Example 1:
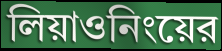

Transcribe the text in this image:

লিয়াওনিংয়ের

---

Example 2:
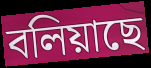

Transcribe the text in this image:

বলিয়াছে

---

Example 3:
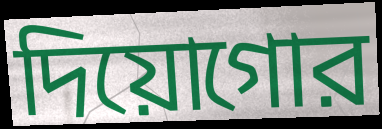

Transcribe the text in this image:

দিয়োগোর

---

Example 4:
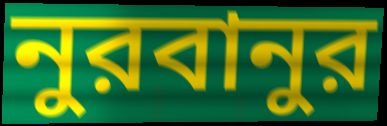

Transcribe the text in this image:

নুরবানুর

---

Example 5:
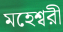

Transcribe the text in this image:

মহেশ্বরী